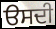
ੳਸਦੀ